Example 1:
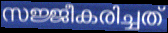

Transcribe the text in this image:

സജ്ജീകരിച്ചത്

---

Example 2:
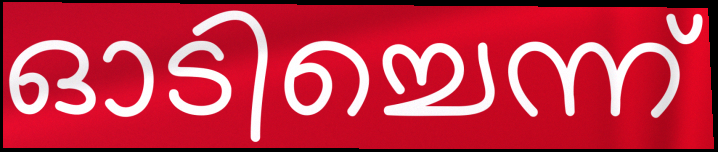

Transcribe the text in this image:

ഓടിച്ചെന്ന്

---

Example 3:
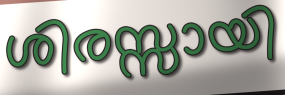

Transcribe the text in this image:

ശിരസ്സായി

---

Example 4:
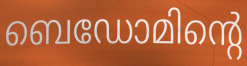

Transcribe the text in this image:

ബെഡോമിന്റെ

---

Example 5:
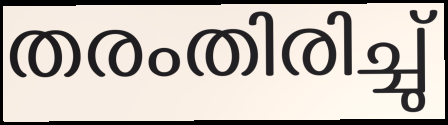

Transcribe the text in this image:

തരംതിരിച്ചു്